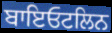
ਬਾਇਓਟਲਿਨ